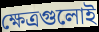
ক্ষেত্রগুলোই